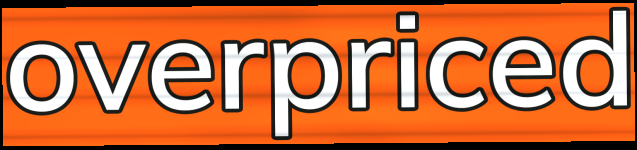
overpriced